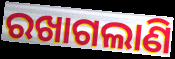
ରଖାଗଲାଣି